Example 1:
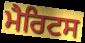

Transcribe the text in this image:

ਮੈਰਿਟਸ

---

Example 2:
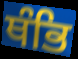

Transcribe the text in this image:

ਥੰਭਿ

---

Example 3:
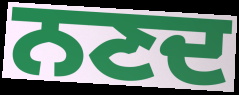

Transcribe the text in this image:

ਨਣਦ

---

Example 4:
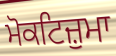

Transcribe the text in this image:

ਮੋਕਟਿਜ਼ੁਮਾ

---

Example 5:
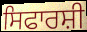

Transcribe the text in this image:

ਸਿਫਾਰਸ਼ੀ